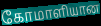
கோமாளியான